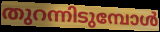
തുറന്നിടുമ്പോൾ